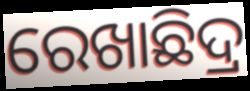
ରେଖାଛିଦ୍ର